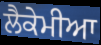
ਲੈਕੇਮੀਆ